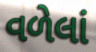
વળેલાં